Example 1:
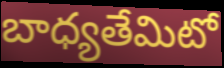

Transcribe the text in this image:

బాధ్యతేమిటో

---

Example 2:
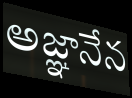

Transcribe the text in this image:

అజ్ఞానేన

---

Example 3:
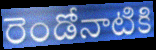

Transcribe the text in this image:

రెండోనాటికి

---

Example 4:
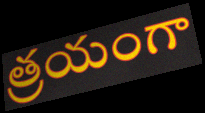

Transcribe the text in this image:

త్రయంగా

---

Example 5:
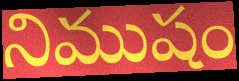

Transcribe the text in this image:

నిముషం